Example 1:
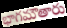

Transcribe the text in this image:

భాగమౌతారు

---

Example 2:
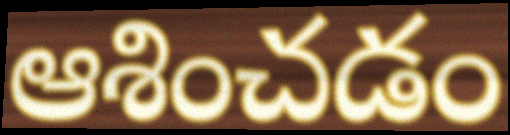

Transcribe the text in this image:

ఆశించడం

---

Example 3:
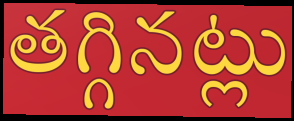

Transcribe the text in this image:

తగ్గినట్లు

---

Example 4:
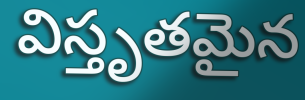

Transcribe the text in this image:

విస్తృతమైన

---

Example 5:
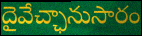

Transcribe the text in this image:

దైవేచ్ఛానుసారం